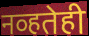
नव्हतेही